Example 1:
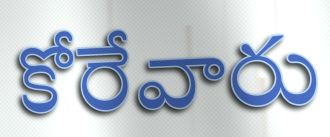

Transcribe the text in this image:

కోరేవారు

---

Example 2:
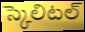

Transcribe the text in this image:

స్కెలిటల్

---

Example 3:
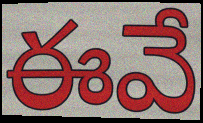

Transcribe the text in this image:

ఈవే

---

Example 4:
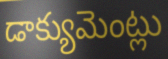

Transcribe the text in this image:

డాక్యుమెంట్లు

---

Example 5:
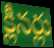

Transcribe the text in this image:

క్లీనర్లు